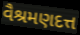
વૈશ્રમણદત્ત